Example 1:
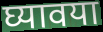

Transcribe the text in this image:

घ्यावया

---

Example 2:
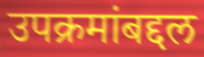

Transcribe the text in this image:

उपक्रमांबद्दल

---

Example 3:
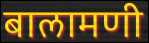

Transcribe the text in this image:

बालामणी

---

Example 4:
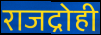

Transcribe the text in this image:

राजद्रोही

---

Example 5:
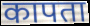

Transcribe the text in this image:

कापता